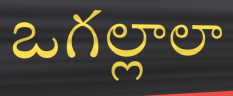
ఒగల్లాలా